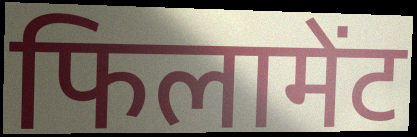
फिलामेंट